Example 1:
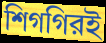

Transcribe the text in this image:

শিগগিরই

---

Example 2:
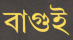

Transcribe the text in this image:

বাগুই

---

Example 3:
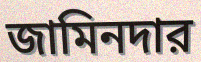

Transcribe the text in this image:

জামিনদার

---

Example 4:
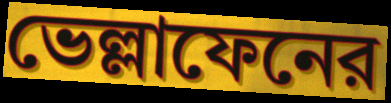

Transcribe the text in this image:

ভেল্লাফেনের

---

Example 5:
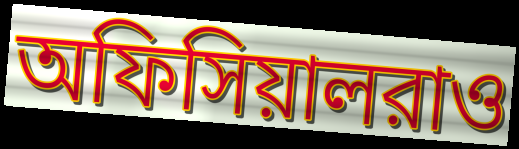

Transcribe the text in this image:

অফিসিয়ালরাও